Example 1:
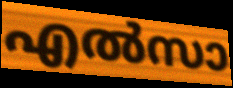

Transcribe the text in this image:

എൽസാ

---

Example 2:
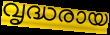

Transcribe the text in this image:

വൃദ്ധരായ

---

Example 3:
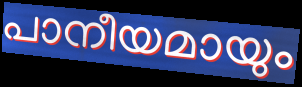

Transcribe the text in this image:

പാനീയമായും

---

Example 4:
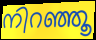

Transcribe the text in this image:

നിറഞ്ഞൂ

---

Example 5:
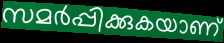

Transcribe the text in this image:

സമർപ്പിക്കുകയാണ്